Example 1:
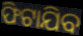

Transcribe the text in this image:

ଫିଟାଯିବ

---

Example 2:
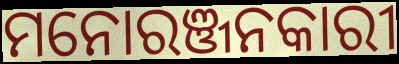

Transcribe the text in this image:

ମନୋରଞ୍ଜନକାରୀ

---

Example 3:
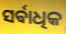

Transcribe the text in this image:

ସର୍ଵାଧିକ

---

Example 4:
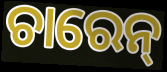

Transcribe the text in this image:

ଚାରେନ୍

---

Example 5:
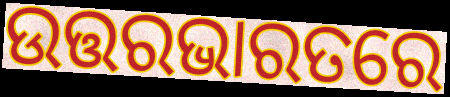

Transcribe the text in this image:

ଉତ୍ତରଭାରତରେ